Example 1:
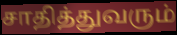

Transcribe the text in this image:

சாதித்துவரும்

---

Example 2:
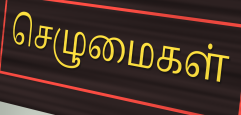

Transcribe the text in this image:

செழுமைகள்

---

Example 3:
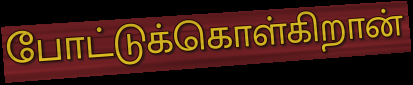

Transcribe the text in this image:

போட்டுக்கொள்கிறான்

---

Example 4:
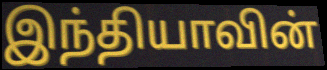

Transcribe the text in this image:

இந்தியாவின்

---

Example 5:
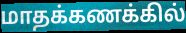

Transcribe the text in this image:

மாதக்கணக்கில்